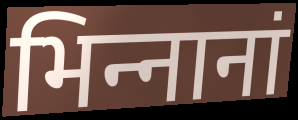
भिन्नानां